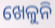
ଖେଳୁନି